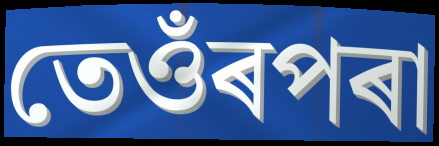
তেওঁৰপৰা